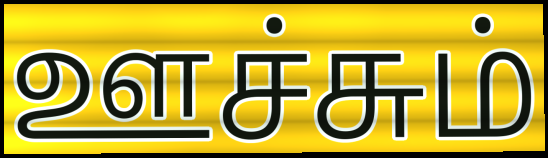
ஊச்சும்